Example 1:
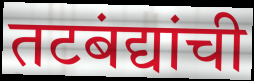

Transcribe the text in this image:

तटबंद्यांची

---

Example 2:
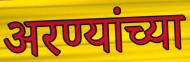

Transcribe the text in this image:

अरण्यांच्या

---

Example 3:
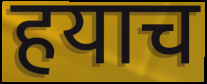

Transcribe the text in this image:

हयाच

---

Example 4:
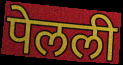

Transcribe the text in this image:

पेलली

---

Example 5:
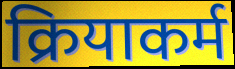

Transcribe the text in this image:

क्रियाकर्म